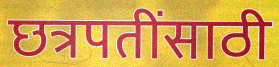
छत्रपतींसाठी